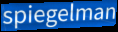
spiegelman